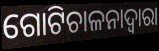
ଗୋଟିଚାଳନାଦ୍ୱାରା